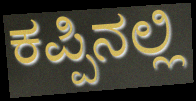
ಕಪ್ಪಿನಲ್ಲಿ